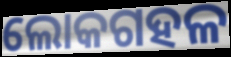
ଲୋକଗହଳ